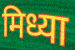
मिध्या